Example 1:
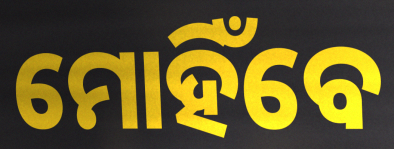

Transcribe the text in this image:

ମୋହିଁବେ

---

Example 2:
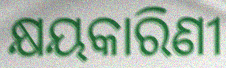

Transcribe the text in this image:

କ୍ଷୟକାରିଣୀ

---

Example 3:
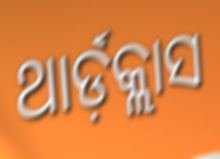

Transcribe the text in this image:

ଥାର୍ଡ଼କ୍ଲାସ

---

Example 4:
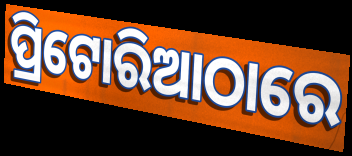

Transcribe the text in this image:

ପ୍ରିଟୋରିଆଠାରେ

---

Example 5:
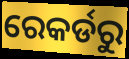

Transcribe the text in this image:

ରେକର୍ଡରୁ